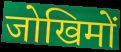
जोखिमों